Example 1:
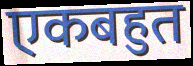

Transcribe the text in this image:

एकबहुत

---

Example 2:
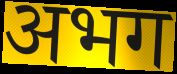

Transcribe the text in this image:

अभग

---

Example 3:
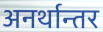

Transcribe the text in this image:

अनर्थान्तर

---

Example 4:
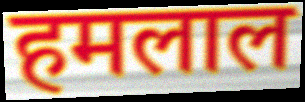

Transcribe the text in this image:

हमलाल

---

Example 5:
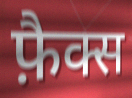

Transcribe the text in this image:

फ़ैक्स